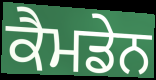
ਕੈਮਡੇਨ